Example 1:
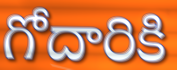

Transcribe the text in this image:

గోదారికి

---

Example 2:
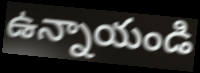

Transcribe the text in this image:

ఉన్నాయండి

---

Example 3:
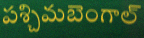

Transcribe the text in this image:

పశ్చిమబెంగాల్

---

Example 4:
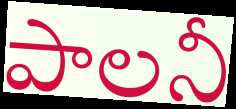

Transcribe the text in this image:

పాలనీ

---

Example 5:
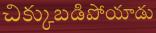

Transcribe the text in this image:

చిక్కుబడిపోయాడు